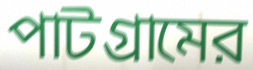
পাটগ্রামের